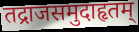
तद्राजसमुदाहृतम्